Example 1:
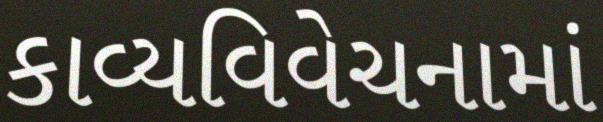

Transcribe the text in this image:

કાવ્યવિવેચનામાં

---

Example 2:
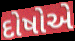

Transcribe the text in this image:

દોષોએ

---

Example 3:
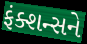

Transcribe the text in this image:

ફંક્શન્સને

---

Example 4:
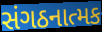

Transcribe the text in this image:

સંગઠનાત્મક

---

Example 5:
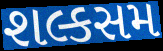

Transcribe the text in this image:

શલ્કસમ